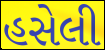
હસેલી